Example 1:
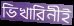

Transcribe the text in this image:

ভিখারিনীই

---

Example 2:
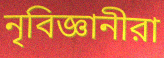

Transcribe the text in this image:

নৃবিজ্ঞানীরা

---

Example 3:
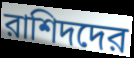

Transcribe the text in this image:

রাশিদদের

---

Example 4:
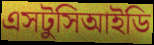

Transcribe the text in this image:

এসটুসিআইডি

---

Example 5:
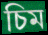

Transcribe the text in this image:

চিম